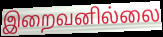
இறைவனில்லை